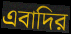
এবাদির